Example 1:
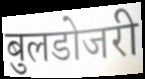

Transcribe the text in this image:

बुलडोजरी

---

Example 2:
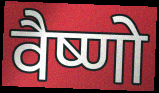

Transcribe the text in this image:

वैष्‍णो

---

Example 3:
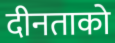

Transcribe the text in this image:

दीनताको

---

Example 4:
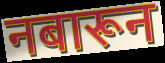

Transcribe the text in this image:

नबारून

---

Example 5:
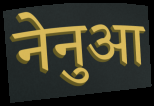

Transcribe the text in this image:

नेनुआ